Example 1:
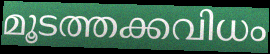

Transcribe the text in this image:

മൂടത്തക്കവിധം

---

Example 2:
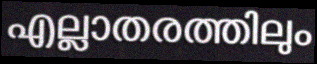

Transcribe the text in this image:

എല്ലാതരത്തിലും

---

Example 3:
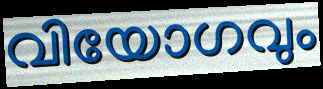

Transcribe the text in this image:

വിയോഗവും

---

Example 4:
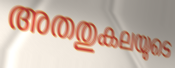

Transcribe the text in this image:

അതതുകലയുടെ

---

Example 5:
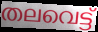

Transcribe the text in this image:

തലവെട്ട്